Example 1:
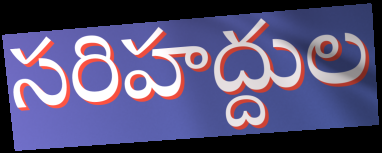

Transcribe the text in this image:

సరిహద్దుల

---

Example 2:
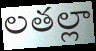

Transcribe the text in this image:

లతల్లా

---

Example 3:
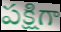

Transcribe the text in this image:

పక్షిగా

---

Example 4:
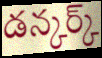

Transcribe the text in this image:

డన్కర్క్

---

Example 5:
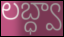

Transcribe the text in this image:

లబ్ధ్వా